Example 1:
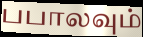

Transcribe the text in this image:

பபாலவும்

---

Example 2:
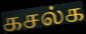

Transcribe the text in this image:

கசல்க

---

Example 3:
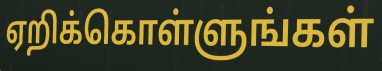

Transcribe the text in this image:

ஏறிக்கொள்ளுங்கள்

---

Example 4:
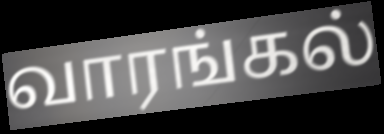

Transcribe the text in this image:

வாரங்கல்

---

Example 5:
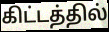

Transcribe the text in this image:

கிட்டத்தில்